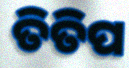
ତିତିପ